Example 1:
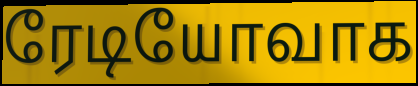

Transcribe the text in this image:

ரேடியோவாக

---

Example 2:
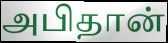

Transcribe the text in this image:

அபிதான்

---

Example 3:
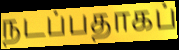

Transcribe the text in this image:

நடப்பதாகப்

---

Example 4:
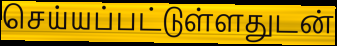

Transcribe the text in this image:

செய்யப்பட்டுள்ளதுடன்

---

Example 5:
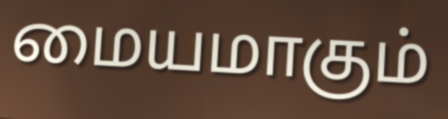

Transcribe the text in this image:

மையமாகும்